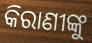
କିରାଣୀଙ୍କୁ